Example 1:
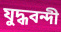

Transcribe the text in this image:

যুদ্ধবন্দী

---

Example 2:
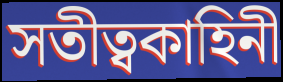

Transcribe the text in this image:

সতীত্বকাহিনী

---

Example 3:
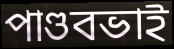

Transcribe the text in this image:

পাণ্ডবভাই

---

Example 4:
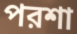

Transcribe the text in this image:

পরশা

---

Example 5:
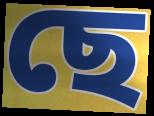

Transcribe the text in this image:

ছে